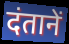
दंतानें